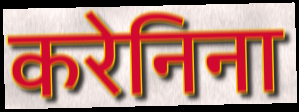
करेनिना